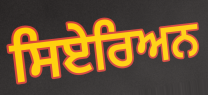
ਸਿਏਰਿਅਨ